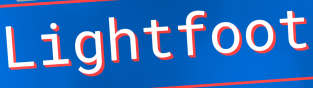
Lightfoot